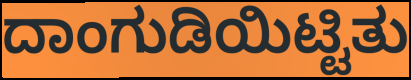
ದಾಂಗುಡಿಯಿಟ್ಟಿತು